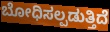
ಬೋಧಿಸಲ್ಪಡುತ್ತಿದೆ